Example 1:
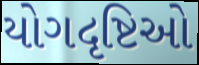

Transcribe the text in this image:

યોગદૃષ્ટિઓ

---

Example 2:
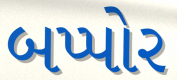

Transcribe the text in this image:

બપ્પોર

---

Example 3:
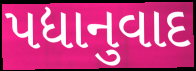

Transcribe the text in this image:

પદ્યાનુવાદ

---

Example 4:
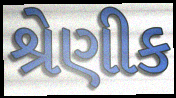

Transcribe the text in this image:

શ્રેણીક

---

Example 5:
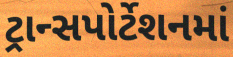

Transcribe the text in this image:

ટ્રાન્સપોર્ટેશનમાં